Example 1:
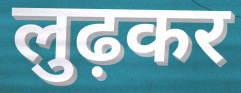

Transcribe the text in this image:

लुढ़कर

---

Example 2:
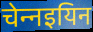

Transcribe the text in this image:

चेन्नइयिन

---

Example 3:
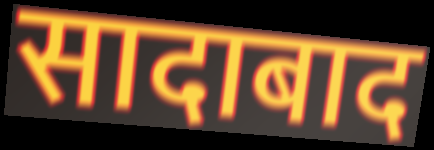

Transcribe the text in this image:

सादाबाद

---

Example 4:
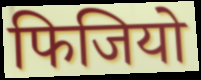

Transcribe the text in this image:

फिजियो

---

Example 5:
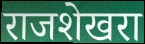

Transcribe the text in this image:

राजशेखरा